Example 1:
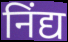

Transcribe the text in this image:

निंद्य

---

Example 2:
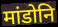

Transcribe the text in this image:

मांडोनि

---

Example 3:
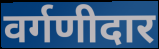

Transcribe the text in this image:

वर्गणीदार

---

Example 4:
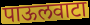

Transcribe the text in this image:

पाऊलवाटा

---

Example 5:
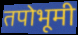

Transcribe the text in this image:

तपोभूमी